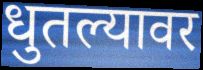
धुतल्यावर